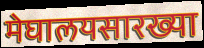
मेघालयसारख्या